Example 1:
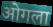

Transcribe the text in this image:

ओगला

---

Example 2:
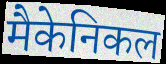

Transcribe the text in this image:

मैकेनिकल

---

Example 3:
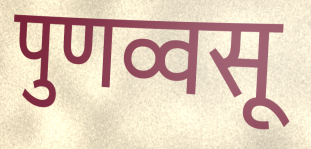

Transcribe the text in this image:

पुणव्वसू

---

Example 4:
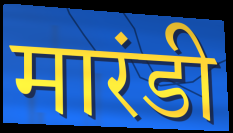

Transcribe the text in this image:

मारंडी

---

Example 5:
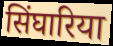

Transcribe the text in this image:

सिंघारिया